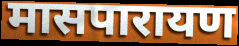
मासपारायण